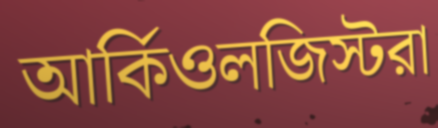
আর্কিওলজিস্টরা